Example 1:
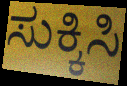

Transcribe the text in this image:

ಸುಕ್ಕಿಸಿ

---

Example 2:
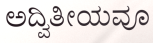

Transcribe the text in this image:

ಅದ್ವಿತೀಯವೂ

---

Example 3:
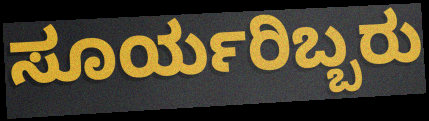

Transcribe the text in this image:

ಸೂರ್ಯರಿಬ್ಬರು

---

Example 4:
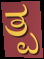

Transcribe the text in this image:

ತ್ಪ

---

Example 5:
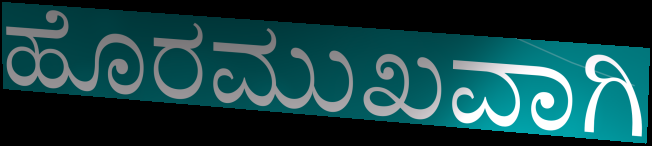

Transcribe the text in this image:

ಹೊರಮುಖವಾಗಿ